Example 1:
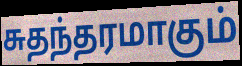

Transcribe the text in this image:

சுதந்தரமாகும்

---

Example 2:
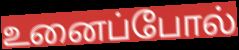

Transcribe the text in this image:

உனைப்போல்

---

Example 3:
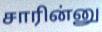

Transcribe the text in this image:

சாரின்னு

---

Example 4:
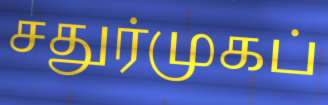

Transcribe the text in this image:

சதுர்முகப்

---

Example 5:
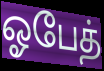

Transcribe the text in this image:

ஓபேத்